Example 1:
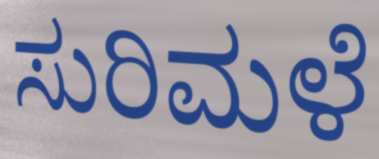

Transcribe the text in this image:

ಸುರಿಮಳೆ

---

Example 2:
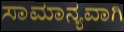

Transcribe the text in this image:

ಸಾಮಾನ್ಯವಾಗಿ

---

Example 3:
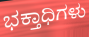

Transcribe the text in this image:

ಭಕ್ತಾಧಿಗಳು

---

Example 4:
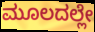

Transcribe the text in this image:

ಮೂಲದಲ್ಲೇ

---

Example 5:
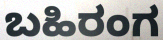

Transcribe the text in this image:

ಬಹಿರಂಗ